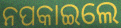
ନପକାଇଲେ